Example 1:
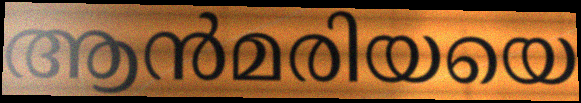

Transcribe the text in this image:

ആൻമരിയയെ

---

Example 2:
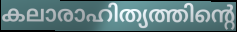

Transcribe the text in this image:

കലാരാഹിത്യത്തിന്റെ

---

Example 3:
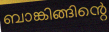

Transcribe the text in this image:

ബാങ്കിങ്ങിന്റെ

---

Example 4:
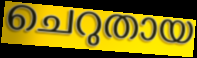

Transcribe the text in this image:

ചെറുതായ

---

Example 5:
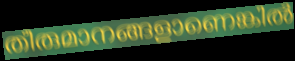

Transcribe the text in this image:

തീരുമാനങ്ങളാണെങ്കിൽ